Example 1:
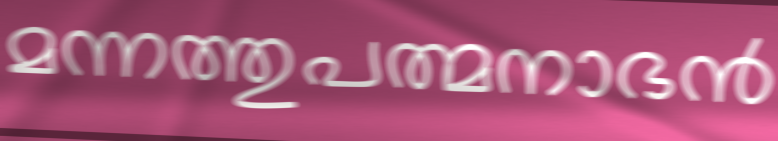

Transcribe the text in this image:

മന്നത്തുപത്മനാഭൻ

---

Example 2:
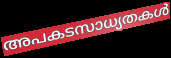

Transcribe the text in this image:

അപകടസാധ്യതകൾ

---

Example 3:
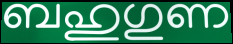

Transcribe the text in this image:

ബഹുഗുണ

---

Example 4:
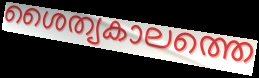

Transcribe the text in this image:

ശൈത്യകാലത്തെ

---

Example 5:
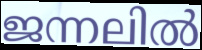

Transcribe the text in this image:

ജന്നലിൽ